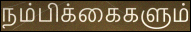
நம்பிக்கைகளும்